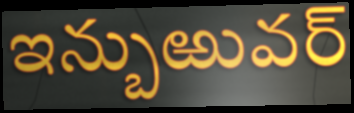
ఇన్బుఱువర్